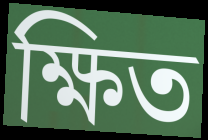
ক্ষিত